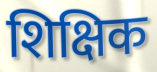
शिक्षिक